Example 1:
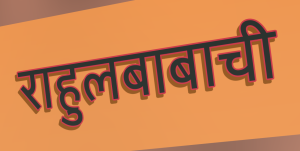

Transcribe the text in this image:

राहुलबाबाची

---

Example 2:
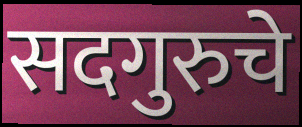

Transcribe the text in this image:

सदगुरुचे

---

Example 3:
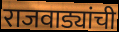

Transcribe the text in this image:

राजवाड्यांची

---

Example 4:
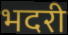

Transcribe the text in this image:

भदरी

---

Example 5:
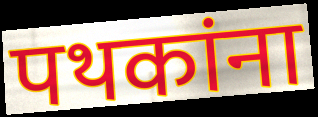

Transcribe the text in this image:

पथकांना